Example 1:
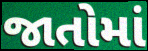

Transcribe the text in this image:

જાતોમાં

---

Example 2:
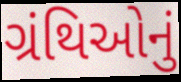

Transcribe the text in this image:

ગ્રંથિઓનું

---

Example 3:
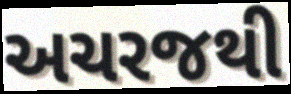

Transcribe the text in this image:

અચરજથી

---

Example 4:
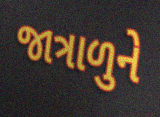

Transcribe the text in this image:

જાત્રાળુને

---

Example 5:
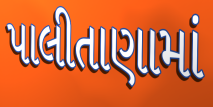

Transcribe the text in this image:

પાલીતાણામાં